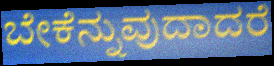
ಬೇಕೆನ್ನುವುದಾದರೆ